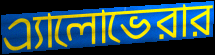
এ্যালোভেরার